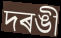
দৰঙী